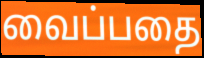
வைப்பதை